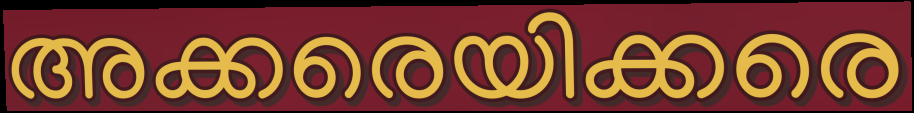
അക്കരെയിക്കരെ